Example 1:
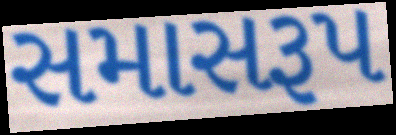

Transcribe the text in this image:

સમાસરૂપ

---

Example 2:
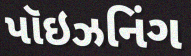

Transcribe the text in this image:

પૉઇઝનિંગ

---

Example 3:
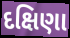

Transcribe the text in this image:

દક્ષિણા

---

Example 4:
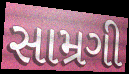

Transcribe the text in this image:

સામ્રગી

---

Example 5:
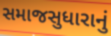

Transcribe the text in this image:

સમાજસુધારાનું